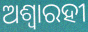
ଅଶ୍ୱାରହୀ